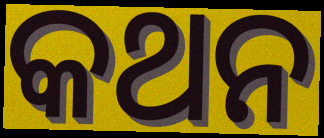
କଥନ